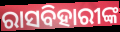
ରାସବିହାରୀଙ୍କ